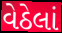
વેઠેલાં